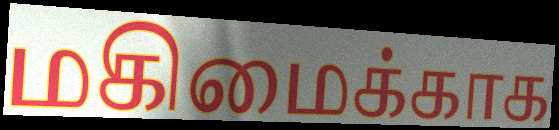
மகிமைக்காக